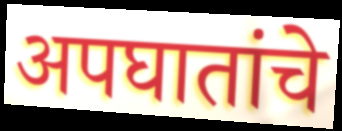
अपघातांचे